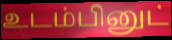
உடம்பினுட்